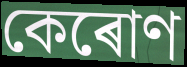
কেৰোণ